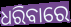
ଧରିବାରେ